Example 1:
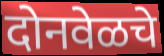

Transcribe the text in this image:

दोनवेळचे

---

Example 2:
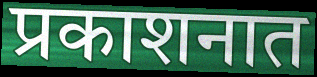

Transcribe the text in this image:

प्रकाशनात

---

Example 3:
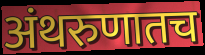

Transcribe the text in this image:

अंथरुणातच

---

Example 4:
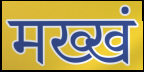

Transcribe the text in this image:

मख्खं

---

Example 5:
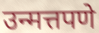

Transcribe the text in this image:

उन्मत्तपणे